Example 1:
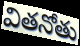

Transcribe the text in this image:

వితనోతు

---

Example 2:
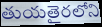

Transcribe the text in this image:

తుయతైరలోని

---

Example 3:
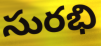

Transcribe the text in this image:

సురభి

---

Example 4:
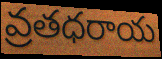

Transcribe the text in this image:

వ్రతధరాయ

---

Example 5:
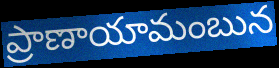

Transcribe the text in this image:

ప్రాణాయామంబున